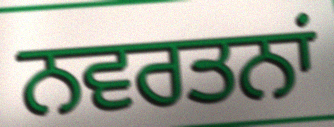
ਨਵਰਤਨਾਂ